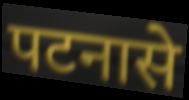
पटनासे